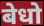
बेधो